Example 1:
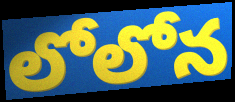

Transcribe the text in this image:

లోలోన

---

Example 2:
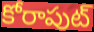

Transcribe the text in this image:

కోరాపుట్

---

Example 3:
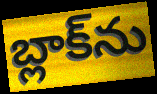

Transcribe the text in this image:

బ్లాక్‌ను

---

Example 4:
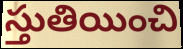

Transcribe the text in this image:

స్తుతియించి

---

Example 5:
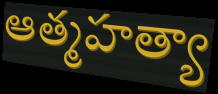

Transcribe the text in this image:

ఆత్మహత్యా